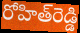
రోహిత్‌రెడ్డి